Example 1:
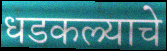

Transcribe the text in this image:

धडकल्याचे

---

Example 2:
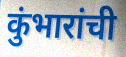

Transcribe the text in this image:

कुंभारांची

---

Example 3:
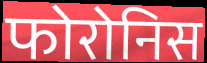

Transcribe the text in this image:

फोरोनिस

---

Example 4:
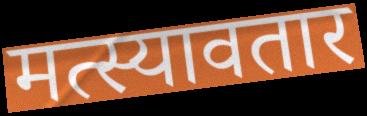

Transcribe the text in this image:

मत्स्यावतार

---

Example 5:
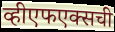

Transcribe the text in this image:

व्हीएफएक्सची